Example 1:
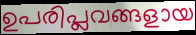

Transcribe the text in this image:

ഉപരിപ്ലവങ്ങളായ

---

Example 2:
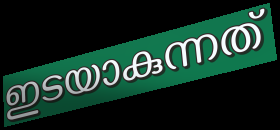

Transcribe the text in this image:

ഇടയാകുന്നത്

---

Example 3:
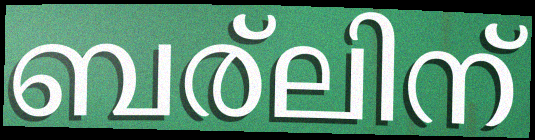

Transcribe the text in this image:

ബര്ലിന്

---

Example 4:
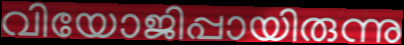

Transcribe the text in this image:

വിയോജിപ്പായിരുന്നു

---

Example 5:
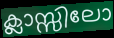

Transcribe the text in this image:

ക്ലാസ്സിലോ